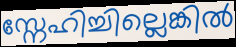
സ്നേഹിച്ചില്ലെങ്കിൽ